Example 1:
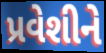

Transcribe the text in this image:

પ્રવેશીને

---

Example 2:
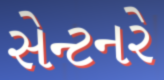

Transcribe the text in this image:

સેન્ટનરે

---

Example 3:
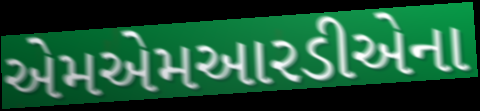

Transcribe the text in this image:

એમએમઆરડીએના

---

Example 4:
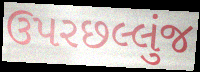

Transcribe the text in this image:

ઉપરછલ્લુંજ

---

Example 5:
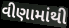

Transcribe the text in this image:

વીણામાંથી